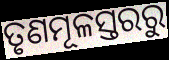
ତୃଣମୂଳସ୍ତରରୁ